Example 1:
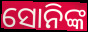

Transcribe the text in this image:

ସୋନିଙ୍କ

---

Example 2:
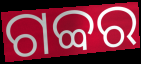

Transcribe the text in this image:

ଗବ୍ବର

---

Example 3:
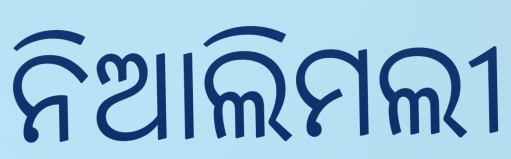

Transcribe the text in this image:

ନିଆଲିମଲୀ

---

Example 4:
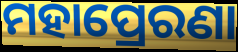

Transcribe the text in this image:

ମହାପ୍ରେରଣା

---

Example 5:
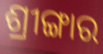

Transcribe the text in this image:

ଶ୍ରୀଙ୍ଗାର